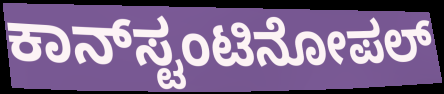
ಕಾನ್‍ಸ್ಟಂಟಿನೋಪಲ್